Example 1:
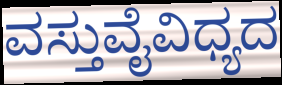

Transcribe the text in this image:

ವಸ್ತುವೈವಿಧ್ಯದ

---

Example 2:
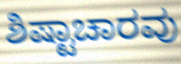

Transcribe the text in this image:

ಶಿಷ್ಟಾಚಾರವು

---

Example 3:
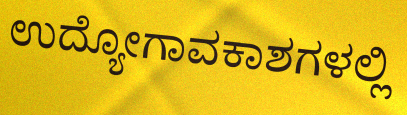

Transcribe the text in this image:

ಉದ್ಯೋಗಾವಕಾಶಗಳಲ್ಲಿ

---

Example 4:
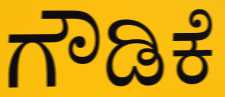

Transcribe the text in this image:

ಗೌಡಿಕೆ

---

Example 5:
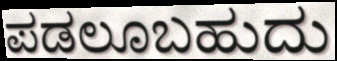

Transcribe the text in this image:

ಪಡಲೂಬಹುದು